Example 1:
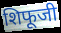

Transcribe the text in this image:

शिफूजी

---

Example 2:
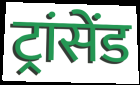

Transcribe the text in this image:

ट्रांसेंड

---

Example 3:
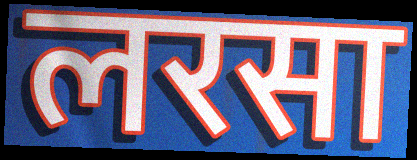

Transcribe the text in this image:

लरसा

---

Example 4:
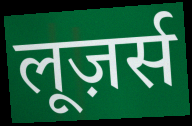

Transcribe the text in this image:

लूज़र्स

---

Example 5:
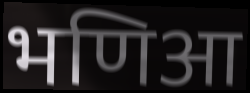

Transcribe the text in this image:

भणिआ